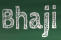
Bhaji